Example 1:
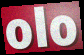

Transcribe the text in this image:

olo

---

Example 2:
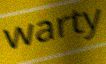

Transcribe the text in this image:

warty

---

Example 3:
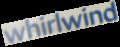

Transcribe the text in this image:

whirlwind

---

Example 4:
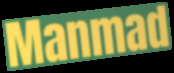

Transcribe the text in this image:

Manmad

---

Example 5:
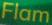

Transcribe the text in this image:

Flam